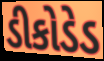
ડીકોડેડ